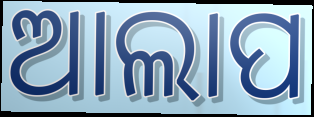
ଆଲାପ